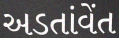
અડતાંવેંત